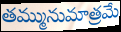
తమ్మునుమాత్రమే